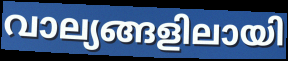
വാല്യങ്ങളിലായി